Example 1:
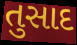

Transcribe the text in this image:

તુસાદ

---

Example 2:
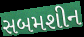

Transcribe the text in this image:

સબમશીન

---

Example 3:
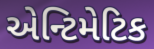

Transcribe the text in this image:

એન્ટિમેટિક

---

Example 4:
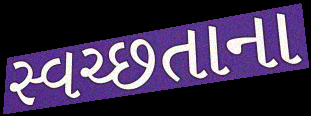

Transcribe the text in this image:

સ્વચ્છતાના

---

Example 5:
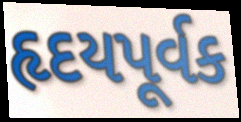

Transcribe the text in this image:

હૃદયપૂર્વક